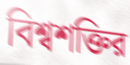
বিশ্বশক্তির